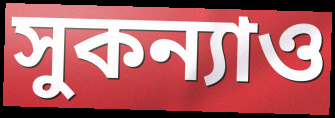
সুকন্যাও